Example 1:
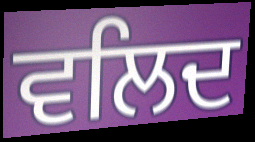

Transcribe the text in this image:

ਵਲਿਦ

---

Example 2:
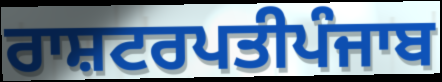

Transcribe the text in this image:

ਰਾਸ਼ਟਰਪਤੀਪੰਜਾਬ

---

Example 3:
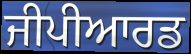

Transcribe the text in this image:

ਜੀਪੀਆਰਡ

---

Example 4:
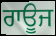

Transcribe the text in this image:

ਰਾਊਜ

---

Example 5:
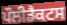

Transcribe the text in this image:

ਪੌਲੀਡੈਕਟਸ